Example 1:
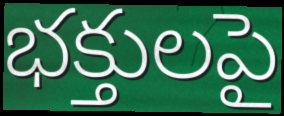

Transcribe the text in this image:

భక్తులపై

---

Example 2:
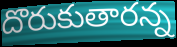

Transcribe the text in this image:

దొరుకుతారన్న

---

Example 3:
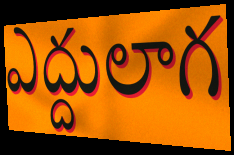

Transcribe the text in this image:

ఎద్దులాగ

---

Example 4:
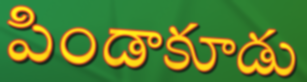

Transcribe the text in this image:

పిండాకూడు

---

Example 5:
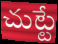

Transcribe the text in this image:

చుట్టే